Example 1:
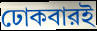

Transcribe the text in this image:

ঢোকবারই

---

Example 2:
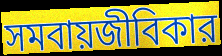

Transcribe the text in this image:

সমবায়জীবিকার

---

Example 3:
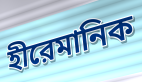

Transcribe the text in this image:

হীরেমানিক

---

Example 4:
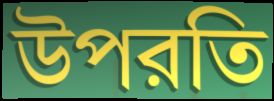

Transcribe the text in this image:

উপরতি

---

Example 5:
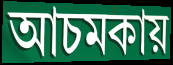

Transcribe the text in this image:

আচমকায়